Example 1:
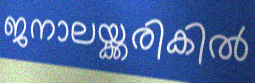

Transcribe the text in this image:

ജനാലയ്ക്കരികിൽ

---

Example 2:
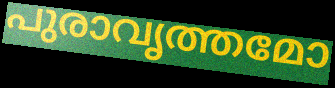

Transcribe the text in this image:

പുരാവൃത്തമോ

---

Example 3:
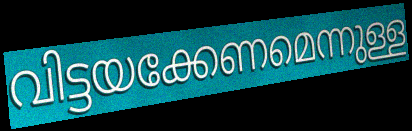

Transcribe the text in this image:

വിട്ടയക്കേണമെന്നുള്ള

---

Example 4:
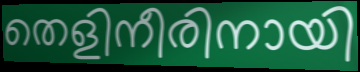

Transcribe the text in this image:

തെളിനീരിനായി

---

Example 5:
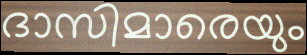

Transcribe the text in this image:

ദാസിമാരെയും